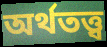
অৰ্থতত্ত্ব